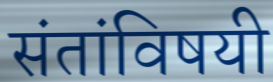
संतांविषयी